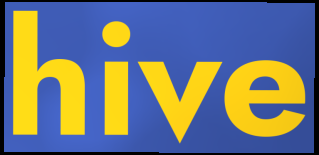
hive